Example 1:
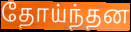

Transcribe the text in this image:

தோய்ந்தன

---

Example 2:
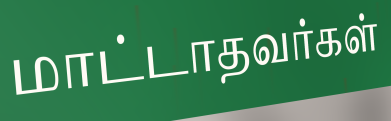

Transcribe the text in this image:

மாட்டாதவர்கள்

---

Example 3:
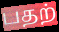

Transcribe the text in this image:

பதற்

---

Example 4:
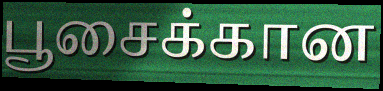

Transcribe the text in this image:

பூசைக்கான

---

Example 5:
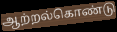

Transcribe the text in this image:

ஆற்றல்கொண்டு